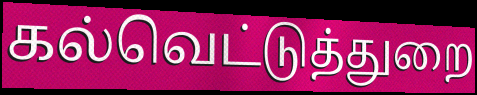
கல்வெட்டுத்துறை